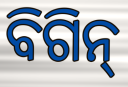
ବିଗିନ୍